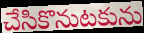
చేసికొనుటకును